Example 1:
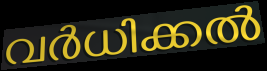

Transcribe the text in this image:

വർധിക്കൽ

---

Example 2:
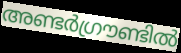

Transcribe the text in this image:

അണ്ടർഗ്രൗണ്ടിൽ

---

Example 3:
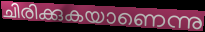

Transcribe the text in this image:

ചിരിക്കുകയാണെന്നു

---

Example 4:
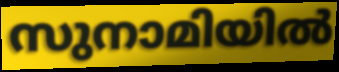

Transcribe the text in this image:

സുനാമിയിൽ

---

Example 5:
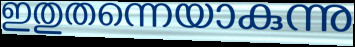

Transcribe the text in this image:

ഇതുതന്നെയാകുന്നു